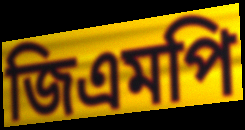
জিএমপি